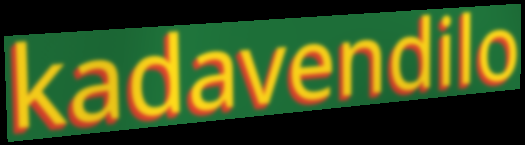
kadavendilo